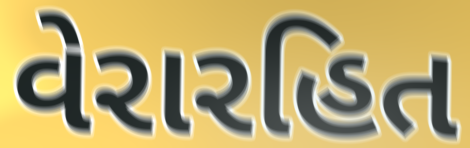
વેરારહિત